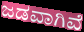
ಜಡವಾಗಿವೆ